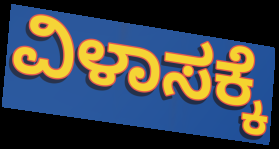
ವಿಳಾಸಕ್ಕೆ